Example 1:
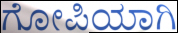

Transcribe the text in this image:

ಗೋಪಿಯಾಗಿ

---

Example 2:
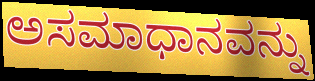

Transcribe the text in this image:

ಅಸಮಾಧಾನವನ್ನು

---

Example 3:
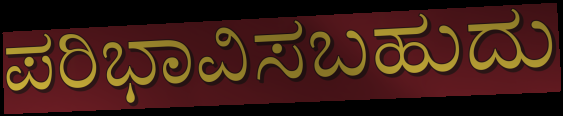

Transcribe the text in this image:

ಪರಿಭಾವಿಸಬಹುದು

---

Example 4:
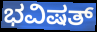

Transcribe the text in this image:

ಭವಿಷತ್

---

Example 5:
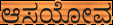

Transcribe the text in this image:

ಆಸಯೋವ